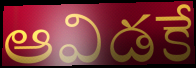
ఆవిడకే